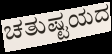
ಚತುಷ್ಟಯದ